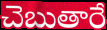
చెబుతారే